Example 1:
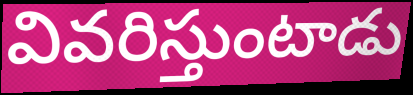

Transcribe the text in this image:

వివరిస్తుంటాడు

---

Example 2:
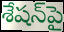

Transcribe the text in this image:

శేషన్‌పై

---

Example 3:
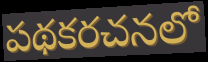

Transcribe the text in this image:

పథకరచనలో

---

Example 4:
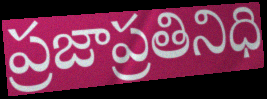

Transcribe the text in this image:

ప్రజాప్రతినిధి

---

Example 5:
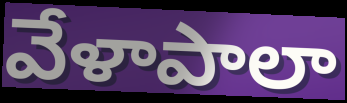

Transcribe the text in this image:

వేళాపాలా